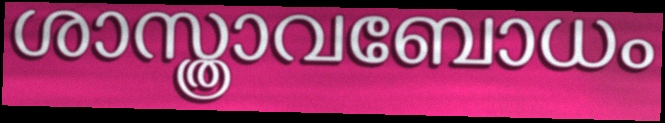
ശാസ്ത്രാവബോധം